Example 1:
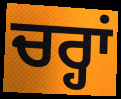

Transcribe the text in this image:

ਚਰ੍ਹਾਂ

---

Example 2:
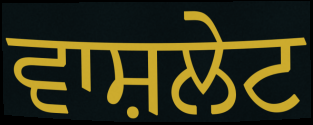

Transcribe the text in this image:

ਵਾਸ਼ਲੇਟ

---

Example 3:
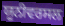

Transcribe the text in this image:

ਯੂਨੀਵਰਸਲ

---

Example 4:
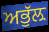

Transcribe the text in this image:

ਅਭੁੱਲ਼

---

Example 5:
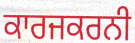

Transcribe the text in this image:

ਕਾਰਜਕਰਨੀ